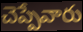
చెప్పేవారు